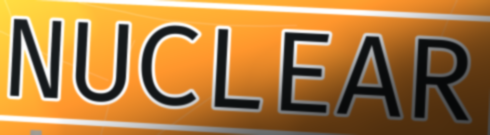
NUCLEAR